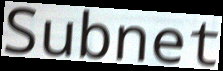
Subnet